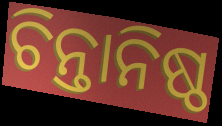
ଚିନ୍ତାନିଷ୍ଠ